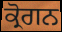
ਕ੍ਰੋਗਨ